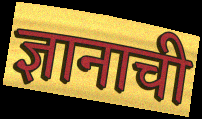
ज्ञानाची